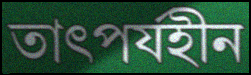
তাৎপর্যহীন